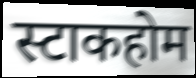
स्टाकहोम